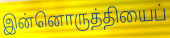
இன்னொருத்தியைப்